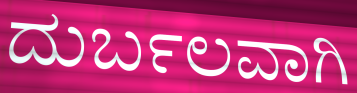
ದುರ್ಬಲವಾಗಿ